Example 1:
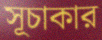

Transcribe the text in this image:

সূচাকার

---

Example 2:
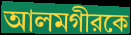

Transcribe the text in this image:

আলমগীরকে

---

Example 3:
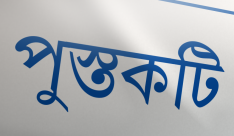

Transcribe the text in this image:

পুস্তকটি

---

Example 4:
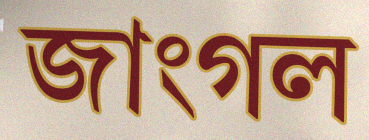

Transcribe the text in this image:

জাংগল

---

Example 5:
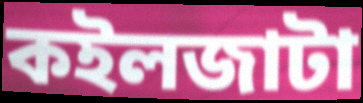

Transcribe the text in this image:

কইলজাটা